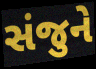
સંજુને